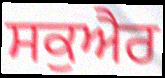
ਸਕੁਐਰ